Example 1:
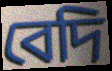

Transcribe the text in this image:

বেদি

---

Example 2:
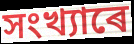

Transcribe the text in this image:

সংখ্যাৰে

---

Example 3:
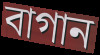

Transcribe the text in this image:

বাগান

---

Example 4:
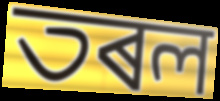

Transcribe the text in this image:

তৰল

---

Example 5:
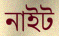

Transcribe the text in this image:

নাইট